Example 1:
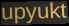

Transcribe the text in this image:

upyukt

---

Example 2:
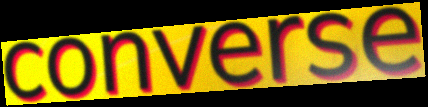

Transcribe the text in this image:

converse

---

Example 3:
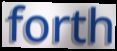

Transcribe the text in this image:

forth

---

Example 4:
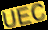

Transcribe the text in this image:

UEC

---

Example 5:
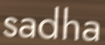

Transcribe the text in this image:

sadha